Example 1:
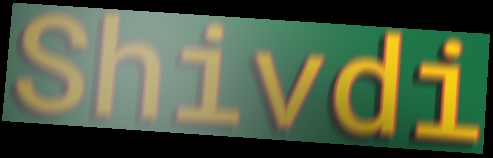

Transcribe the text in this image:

Shivdi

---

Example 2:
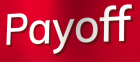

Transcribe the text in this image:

Payoff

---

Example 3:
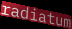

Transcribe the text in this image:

radiatum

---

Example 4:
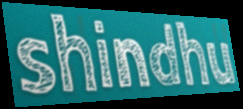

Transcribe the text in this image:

shindhu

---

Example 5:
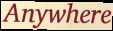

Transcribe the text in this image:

Anywhere